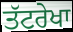
ਤੱਟਰੇਖਾ